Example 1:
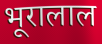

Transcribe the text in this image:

भूरालाल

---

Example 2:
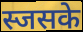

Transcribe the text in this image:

स्जसके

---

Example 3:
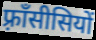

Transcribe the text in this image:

फ़्राँसीसियों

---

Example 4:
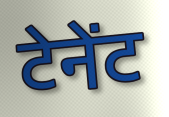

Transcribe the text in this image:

टेनेंट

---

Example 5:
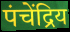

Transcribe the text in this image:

पंचेंद्रिय